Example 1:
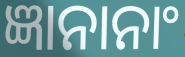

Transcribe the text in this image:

ଜ୍ଞାନାନାଂ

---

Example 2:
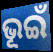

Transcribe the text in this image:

ଭୂଇଁ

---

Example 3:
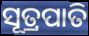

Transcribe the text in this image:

ସୂତ୍ରପାତି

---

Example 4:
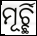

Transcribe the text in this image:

ମୂର୍ଚ୍ଛି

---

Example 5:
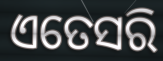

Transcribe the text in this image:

ଏତେସରି